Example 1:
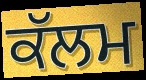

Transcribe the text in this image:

ਕੱਲਮ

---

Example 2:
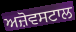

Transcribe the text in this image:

ਅਜ਼ੋਵਸਟਾਲ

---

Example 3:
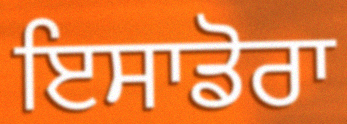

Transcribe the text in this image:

ਇਸਾਡੋਰਾ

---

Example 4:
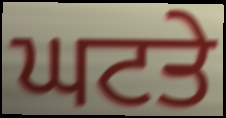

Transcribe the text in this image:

ਘਟਤੇ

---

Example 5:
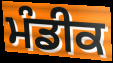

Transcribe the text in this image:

ਮੰਡੀਕ